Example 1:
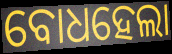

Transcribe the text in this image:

ବୋଧହେଲା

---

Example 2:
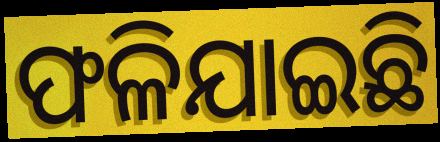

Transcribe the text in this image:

ଫଳିଯାଇଛି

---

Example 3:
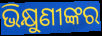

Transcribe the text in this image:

ଭିକ୍ଷୁଣୀଙ୍କର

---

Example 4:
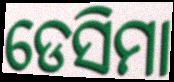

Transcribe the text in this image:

ଡେସିମା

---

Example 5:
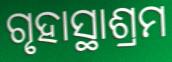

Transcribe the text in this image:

ଗୃହାସ୍ଥାଶ୍ରମ